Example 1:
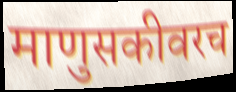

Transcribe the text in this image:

माणुसकीवरच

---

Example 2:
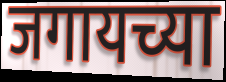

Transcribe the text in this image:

जगायच्या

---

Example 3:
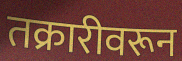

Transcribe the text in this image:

तक्रारीवरून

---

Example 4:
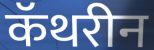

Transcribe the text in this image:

कॅथरीन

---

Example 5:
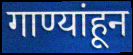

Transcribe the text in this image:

गाण्यांहून